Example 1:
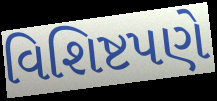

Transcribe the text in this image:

વિશિષ્ટપણે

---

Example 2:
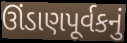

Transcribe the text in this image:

ઊંડાણપૂર્વકનું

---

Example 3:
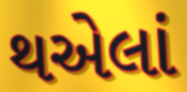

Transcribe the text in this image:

થએલાં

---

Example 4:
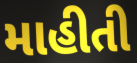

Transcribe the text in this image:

માહીતી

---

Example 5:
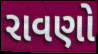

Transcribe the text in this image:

રાવણો